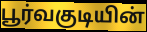
பூர்வகுடியின்